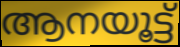
ആനയൂട്ട്